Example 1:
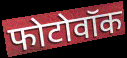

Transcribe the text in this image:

फोटोवॉक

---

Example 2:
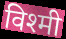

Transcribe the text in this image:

विश्मी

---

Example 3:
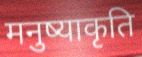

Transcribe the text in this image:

मनुष्याकृति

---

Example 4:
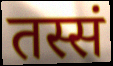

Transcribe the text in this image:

तस्सं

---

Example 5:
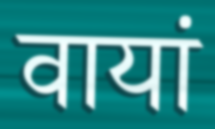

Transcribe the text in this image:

वायां